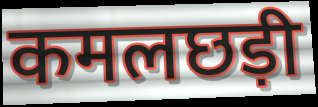
कमलछड़ी